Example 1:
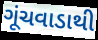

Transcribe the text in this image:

ગૂંચવાડાથી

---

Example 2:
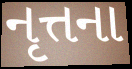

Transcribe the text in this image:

નૃત્તના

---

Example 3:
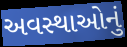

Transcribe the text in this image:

અવસ્થાઓનું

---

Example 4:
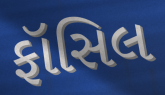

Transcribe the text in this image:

ફૉસિલ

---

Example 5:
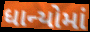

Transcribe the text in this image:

ધાન્યોમાં